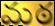
మఠ